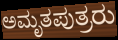
ಅಮೃತಪುತ್ರರು